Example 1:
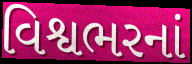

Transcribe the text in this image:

વિશ્વભરનાં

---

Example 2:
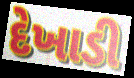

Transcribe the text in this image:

દેખાડી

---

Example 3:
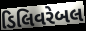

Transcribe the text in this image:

ડિલિવરેબલ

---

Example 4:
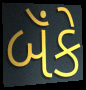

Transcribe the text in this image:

બૅંકે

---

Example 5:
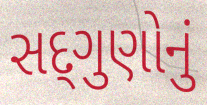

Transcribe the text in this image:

સદ્‌ગુણોનું